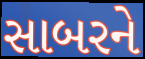
સાબરને